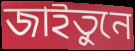
জাইতুনে